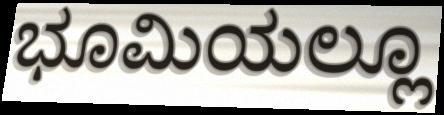
ಭೂಮಿಯಲ್ಲೂ